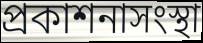
প্রকাশনাসংস্থা